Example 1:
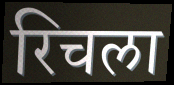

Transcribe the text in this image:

रिचला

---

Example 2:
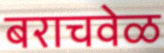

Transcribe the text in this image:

बराचवेळ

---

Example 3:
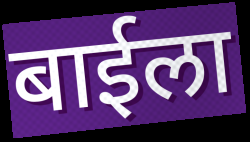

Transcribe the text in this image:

बाईला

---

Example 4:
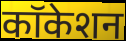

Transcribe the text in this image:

कॉकेशन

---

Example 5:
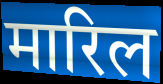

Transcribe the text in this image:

मारिल